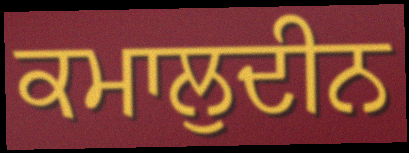
ਕਮਾਲੁਦੀਨ